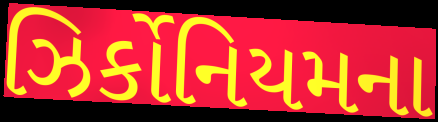
ઝિર્કોનિયમના